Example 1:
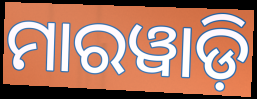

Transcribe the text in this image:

ମାରୱାଡ଼ି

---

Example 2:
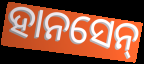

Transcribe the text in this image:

ହାନସେନ୍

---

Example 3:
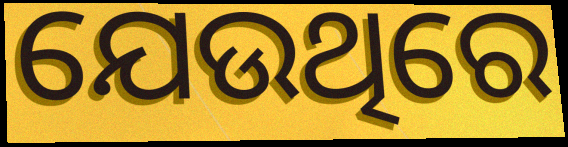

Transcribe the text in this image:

ଯେଉଥିରେ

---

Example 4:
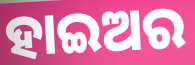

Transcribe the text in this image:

ହାଇଅର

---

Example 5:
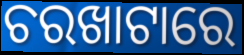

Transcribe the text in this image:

ଚରଖାଟାରେ